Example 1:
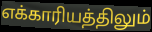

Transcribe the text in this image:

எக்காரியத்திலும்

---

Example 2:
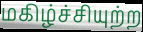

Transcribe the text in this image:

மகிழ்ச்சியுற்ற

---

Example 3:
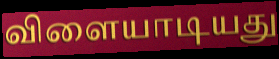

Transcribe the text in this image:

விளையாடியது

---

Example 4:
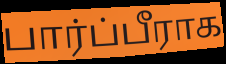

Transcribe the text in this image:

பார்ப்பீராக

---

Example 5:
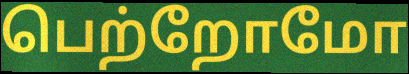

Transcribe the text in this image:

பெற்றோமோ